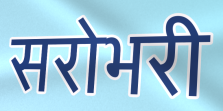
सरोभरी